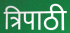
त्रिपाठी